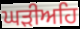
ਘੜੀਅਹਿ